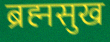
ब्रह्मसुख